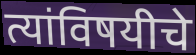
त्यांविषयीचे